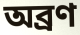
অব্রণ